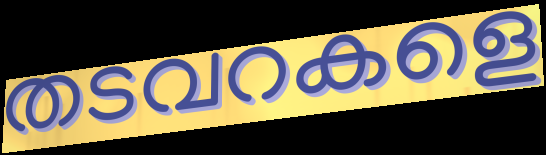
തടവറകളെ